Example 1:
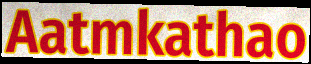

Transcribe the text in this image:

Aatmkathao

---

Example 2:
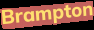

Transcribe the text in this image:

Brampton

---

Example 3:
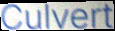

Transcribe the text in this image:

Culvert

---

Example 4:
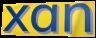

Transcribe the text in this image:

xan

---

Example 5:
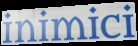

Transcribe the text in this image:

inimici